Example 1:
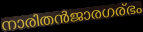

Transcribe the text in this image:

നാരിതൻജാരഗര്ഭം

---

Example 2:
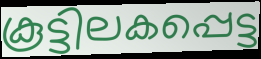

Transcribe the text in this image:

കൂട്ടിലകപ്പെട്ട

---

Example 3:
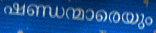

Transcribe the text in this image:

ഷണ്ഡന്മാരെയും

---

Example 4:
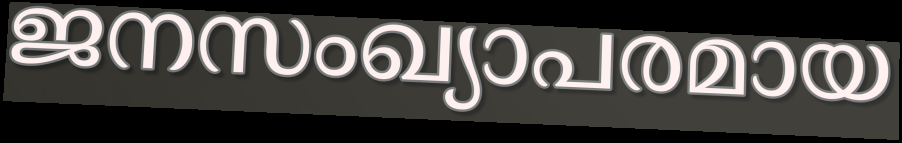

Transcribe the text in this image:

ജനസംഖ്യാപരമായ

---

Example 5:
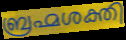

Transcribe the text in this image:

ബ്രഹ്മശക്തി